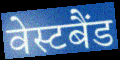
वेस्टबैंड